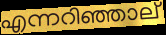
എന്നറിഞ്ഞാല്